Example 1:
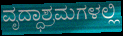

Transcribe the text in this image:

ವೃದ್ಧಾಶ್ರಮಗಳಲ್ಲಿ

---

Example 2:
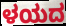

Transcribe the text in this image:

ಳಯದ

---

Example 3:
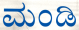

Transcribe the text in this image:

ಮಂಡಿ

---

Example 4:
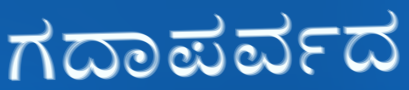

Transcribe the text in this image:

ಗದಾಪರ್ವದ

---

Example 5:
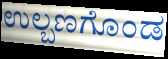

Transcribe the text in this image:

ಉಲ್ಬಣಗೊಂಡ